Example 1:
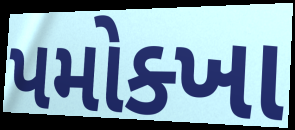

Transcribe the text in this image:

પમોક્ખા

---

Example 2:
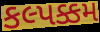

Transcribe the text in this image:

કલ્પક્કમ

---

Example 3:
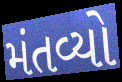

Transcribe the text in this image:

મંતવ્યો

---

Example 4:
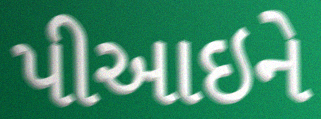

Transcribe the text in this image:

પીઆઇને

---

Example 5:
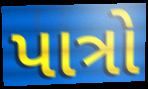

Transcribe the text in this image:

પાત્રો